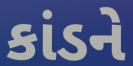
કાંડને